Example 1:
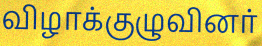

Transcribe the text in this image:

விழாக்குழுவினர்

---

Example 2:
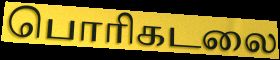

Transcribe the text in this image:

பொரிகடலை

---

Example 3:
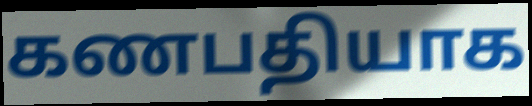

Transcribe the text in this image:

கணபதியாக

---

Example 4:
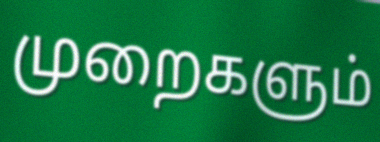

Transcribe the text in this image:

முறைகளும்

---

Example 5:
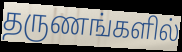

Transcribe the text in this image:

தருணங்களில்